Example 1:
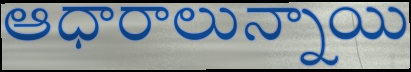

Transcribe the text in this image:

ఆధారాలున్నాయి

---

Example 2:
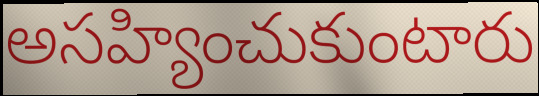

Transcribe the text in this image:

అసహ్యించుకుంటారు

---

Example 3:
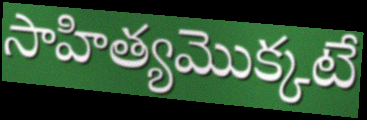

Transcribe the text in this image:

సాహిత్యమొక్కటే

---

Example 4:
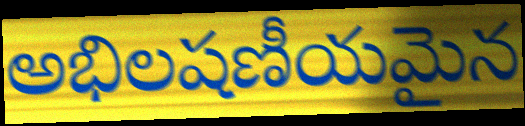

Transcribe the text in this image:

అభిలషణీయమైన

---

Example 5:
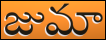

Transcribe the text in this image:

జుమా